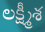
లక్ష్మీశ